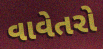
વાવેતરો